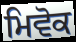
ਮਿਵੋਕ